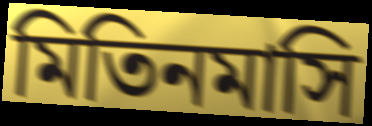
মিতিনমাসি